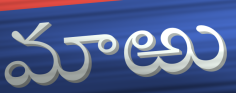
మాఱు